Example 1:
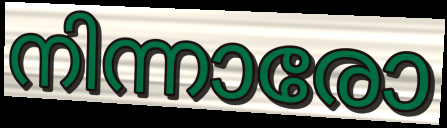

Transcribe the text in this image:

നിന്നാരോ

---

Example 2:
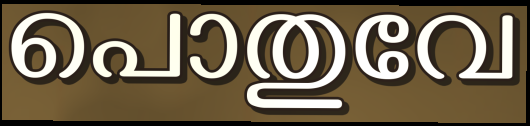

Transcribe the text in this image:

പൊതുവേ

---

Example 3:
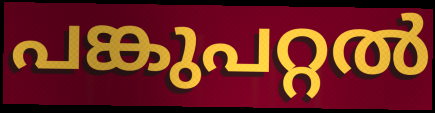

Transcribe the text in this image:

പങ്കുപറ്റൽ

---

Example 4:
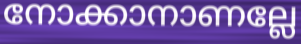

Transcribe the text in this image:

നോക്കാനാണല്ലേ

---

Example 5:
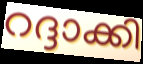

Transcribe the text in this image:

റദ്ദാക്കി